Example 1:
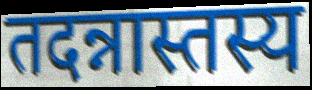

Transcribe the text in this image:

तदन्नास्तस्य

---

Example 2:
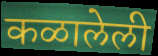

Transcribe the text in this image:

कळालेली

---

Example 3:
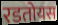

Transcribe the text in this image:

रडतोयस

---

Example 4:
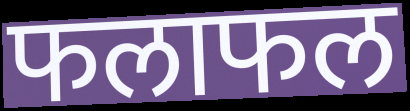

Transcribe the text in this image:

फलाफल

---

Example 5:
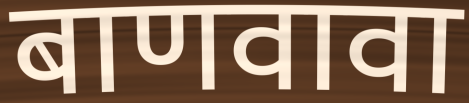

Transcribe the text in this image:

बाणवावा